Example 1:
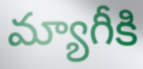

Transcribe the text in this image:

మ్యాగీకి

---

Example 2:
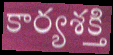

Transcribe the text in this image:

కార్యశక్తి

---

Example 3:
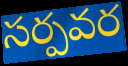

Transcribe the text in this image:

సర్పవర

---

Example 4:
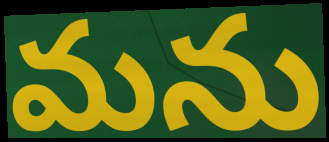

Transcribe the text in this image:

మను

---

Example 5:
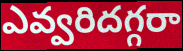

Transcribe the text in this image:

ఎవ్వరిదగ్గరా